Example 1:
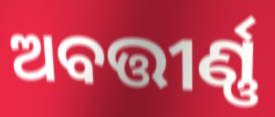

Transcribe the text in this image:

ଅବତ୍ତୀର୍ଣ୍ଣ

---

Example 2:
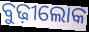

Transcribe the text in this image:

ବୁଢ଼ୀଲୋକ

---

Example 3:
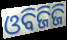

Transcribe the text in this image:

ଓବିଜିଜି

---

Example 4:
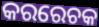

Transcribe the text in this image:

କରରେଚକ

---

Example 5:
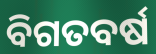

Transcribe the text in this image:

ବିଗତବର୍ଷ